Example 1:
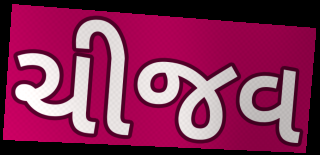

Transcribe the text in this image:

ચીજવ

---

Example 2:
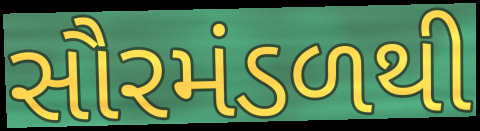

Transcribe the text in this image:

સૌરમંડળથી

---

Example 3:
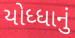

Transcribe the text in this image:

યોધ્ધાનું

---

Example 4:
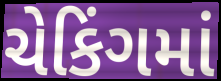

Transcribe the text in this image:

ચેકિંગમાં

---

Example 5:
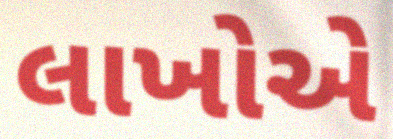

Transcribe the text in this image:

લાખોએ